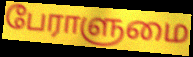
பேராளுமை